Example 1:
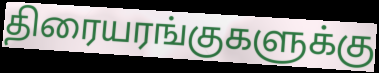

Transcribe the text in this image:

திரையரங்குகளுக்கு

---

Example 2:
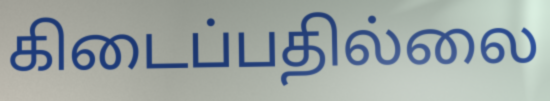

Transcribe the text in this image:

கிடைப்பதில்லை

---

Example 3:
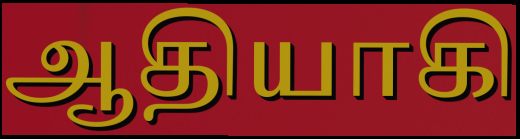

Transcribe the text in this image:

ஆதியாகி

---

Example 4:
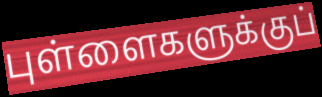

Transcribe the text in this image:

புள்ளைகளுக்குப்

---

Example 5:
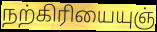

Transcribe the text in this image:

நற்கிரியையுஞ்